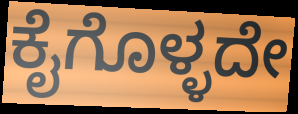
ಕೈಗೊಳ್ಳದೇ